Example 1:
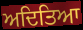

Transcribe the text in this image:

ਅਦਿਤਿਆ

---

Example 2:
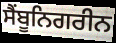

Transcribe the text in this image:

ਸੈਂਬੂਨਿਗਰੀਨ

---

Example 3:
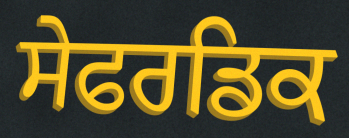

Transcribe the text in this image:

ਸੇਫਰਡਿਕ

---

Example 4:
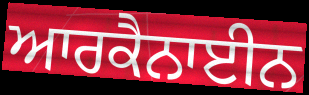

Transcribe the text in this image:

ਆਰਕੈਨਾਈਨ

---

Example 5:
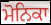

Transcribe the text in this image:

ਮੋਨਿਕਾ